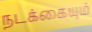
நடக்கையும்